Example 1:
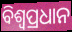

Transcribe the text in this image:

ବିଶ୍ୱପ୍ରଧାନ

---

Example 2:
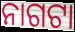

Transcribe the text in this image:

ନାଗଟା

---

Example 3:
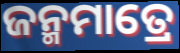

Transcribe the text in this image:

ଜନ୍ମମାତ୍ରେ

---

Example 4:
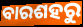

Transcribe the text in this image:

ବାରଶହରୁ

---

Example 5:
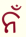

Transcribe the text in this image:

ନଁ